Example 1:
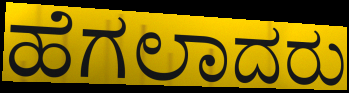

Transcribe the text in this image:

ಹೆಗಲಾದರು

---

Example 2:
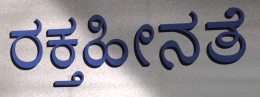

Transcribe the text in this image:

ರಕ್ತಹೀನತೆ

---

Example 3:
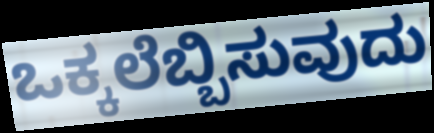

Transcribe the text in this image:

ಒಕ್ಕಲೆಬ್ಬಿಸುವುದು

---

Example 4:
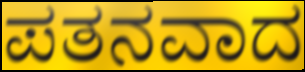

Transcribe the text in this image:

ಪತನವಾದ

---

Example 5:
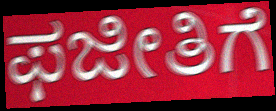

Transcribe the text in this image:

ಫಜೀತಿಗೆ